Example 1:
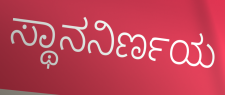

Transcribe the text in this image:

ಸ್ಥಾನನಿರ್ಣಯ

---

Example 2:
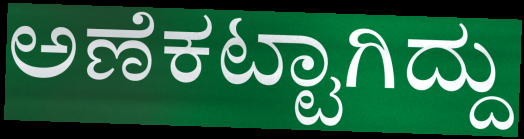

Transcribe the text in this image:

ಅಣೆಕಟ್ಟಾಗಿದ್ದು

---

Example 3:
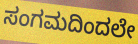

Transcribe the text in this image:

ಸಂಗಮದಿಂದಲೇ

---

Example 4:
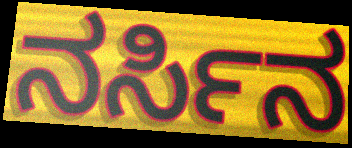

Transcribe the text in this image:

ನರ್ಸಿನ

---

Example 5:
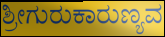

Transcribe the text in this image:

ಶ್ರೀಗುರುಕಾರುಣ್ಯವ